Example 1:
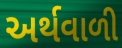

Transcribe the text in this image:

અર્થવાળી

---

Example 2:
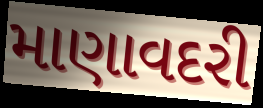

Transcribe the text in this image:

માણાવદરી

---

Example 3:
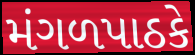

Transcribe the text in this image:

મંગળપાઠકે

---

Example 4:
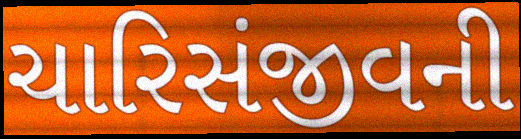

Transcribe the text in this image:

ચારિસંજીવની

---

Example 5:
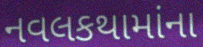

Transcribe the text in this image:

નવલકથામાંના